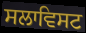
ਸਲਾਵਿਸਟ